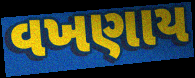
વખણાય